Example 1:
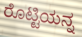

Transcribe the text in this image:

ರೊಟ್ಟಿಯನ್ನ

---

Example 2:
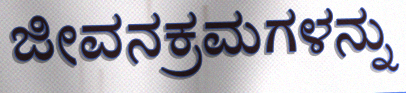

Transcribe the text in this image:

ಜೀವನಕ್ರಮಗಳನ್ನು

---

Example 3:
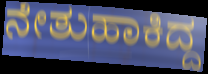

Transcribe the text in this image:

ನೇತುಹಾಕಿದ್ದ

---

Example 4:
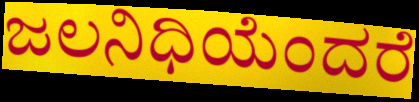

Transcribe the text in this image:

ಜಲನಿಧಿಯೆಂದರೆ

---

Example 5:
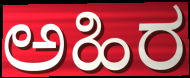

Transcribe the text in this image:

ಅಹಿರ